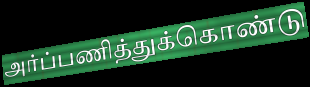
அர்ப்பணித்துக்கொண்டு